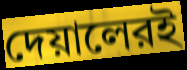
দেয়ালেরই